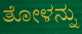
ತೋಳನ್ನು